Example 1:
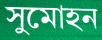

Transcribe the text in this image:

সুমোহন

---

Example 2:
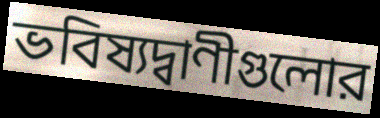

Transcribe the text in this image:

ভবিষ্যদ্বাণীগুলোর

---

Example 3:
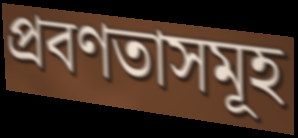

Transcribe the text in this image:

প্রবণতাসমূহ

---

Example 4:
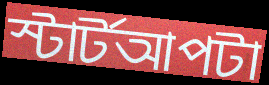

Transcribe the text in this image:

স্টার্টআপটা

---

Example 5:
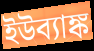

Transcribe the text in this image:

ইউব্যাঙ্ক